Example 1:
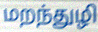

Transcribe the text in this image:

மறந்துழி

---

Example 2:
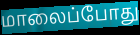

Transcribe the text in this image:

மாலைப்போது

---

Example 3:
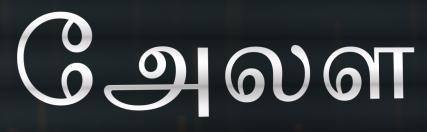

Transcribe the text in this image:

அேலள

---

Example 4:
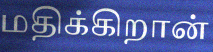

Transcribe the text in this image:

மதிக்கிறான்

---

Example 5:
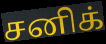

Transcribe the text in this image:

சனிக்